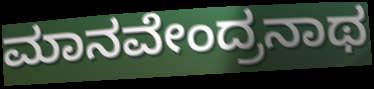
ಮಾನವೇಂದ್ರನಾಥ